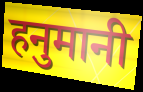
हनुमानी